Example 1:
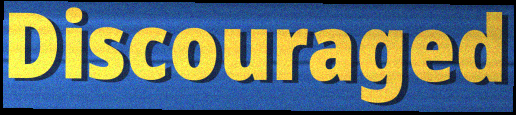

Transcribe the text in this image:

Discouraged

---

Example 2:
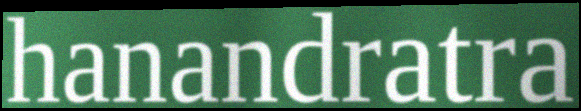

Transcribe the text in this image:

hanandratra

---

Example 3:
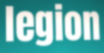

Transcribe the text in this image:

legion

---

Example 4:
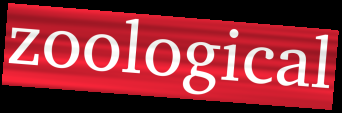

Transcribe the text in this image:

zoological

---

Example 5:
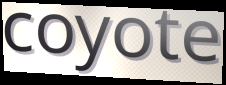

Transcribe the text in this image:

coyote